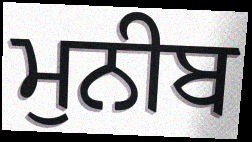
ਮੁਨੀਬ